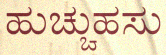
ಹುಚ್ಚುಹಸು